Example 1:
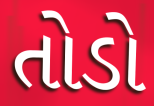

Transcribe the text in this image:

તોડો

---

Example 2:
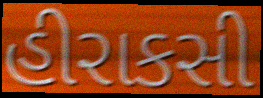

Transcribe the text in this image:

હીરાકસી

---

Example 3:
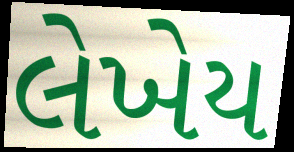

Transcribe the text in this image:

લેખેય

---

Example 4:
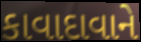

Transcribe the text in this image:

કાવાદાવાને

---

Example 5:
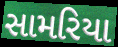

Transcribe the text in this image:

સામરિયા